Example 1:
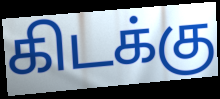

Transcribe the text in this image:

கிடக்கு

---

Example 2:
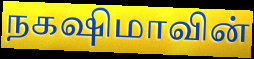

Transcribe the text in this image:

நகஷிமாவின்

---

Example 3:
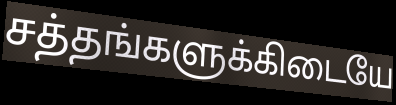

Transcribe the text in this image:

சத்தங்களுக்கிடையே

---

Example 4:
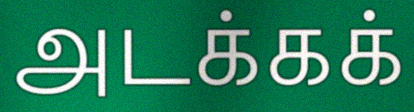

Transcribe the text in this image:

அடக்கக்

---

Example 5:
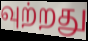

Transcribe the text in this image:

வுற்றது